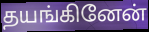
தயங்கினேன்